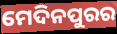
ମେଦିନପୁରର